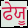
ਫੇਯੂ